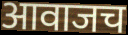
आवाजच